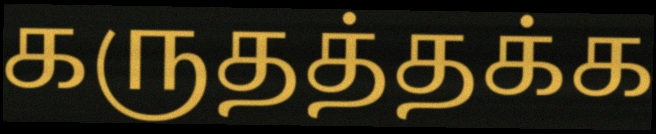
கருதத்தக்க